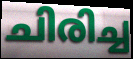
ചിരിച്ച